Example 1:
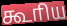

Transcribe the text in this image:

கூரிய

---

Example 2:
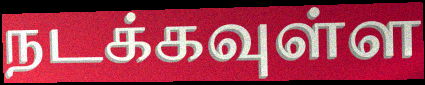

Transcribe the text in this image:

நடக்கவுள்ள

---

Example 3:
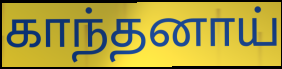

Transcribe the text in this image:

காந்தனாய்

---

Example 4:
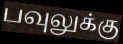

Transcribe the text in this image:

பவுலுக்கு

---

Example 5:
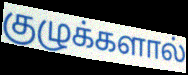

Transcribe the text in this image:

குழுக்களால்